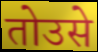
तोउसे